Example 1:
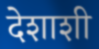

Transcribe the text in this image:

देशाशी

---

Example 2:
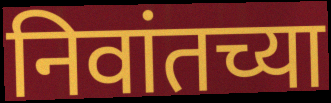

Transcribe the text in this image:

निवांतच्या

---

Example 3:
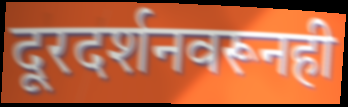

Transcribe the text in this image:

दूरदर्शनवरूनही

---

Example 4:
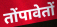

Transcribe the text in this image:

तोंपावेतों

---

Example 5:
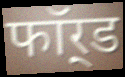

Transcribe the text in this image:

फॉर्ड